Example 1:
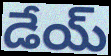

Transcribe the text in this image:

డేయ్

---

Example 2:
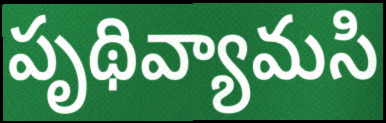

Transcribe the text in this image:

పృథివ్యామసి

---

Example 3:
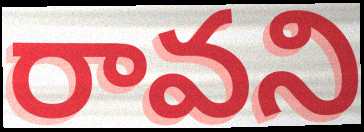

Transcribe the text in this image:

రావని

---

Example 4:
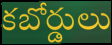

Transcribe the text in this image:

కబోర్డులు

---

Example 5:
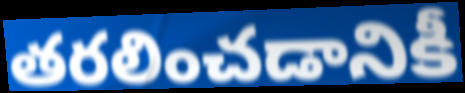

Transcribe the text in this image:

తరలించడానికీ